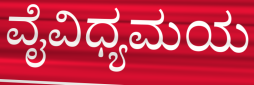
ವೈವಿಧ್ಯಮಯ